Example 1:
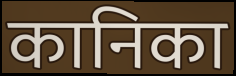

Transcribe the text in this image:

कानिका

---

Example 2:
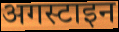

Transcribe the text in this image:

अगस्टाइन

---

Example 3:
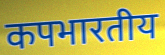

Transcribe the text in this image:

कपभारतीय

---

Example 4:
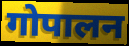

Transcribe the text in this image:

गोपालन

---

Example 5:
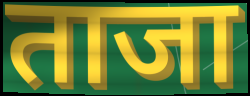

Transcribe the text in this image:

ताजा